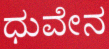
ಧುವೇನ